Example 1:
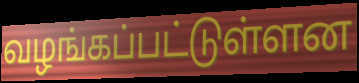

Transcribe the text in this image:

வழங்கப்பட்டுள்ளன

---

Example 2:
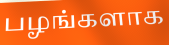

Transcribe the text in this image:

பழங்களாக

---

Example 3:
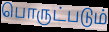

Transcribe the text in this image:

பொருட்படும்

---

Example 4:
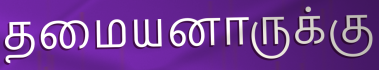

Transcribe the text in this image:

தமையனாருக்கு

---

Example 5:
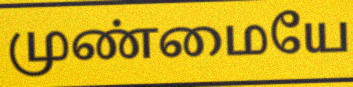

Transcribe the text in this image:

முண்மையே